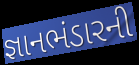
જ્ઞાનભંડારની